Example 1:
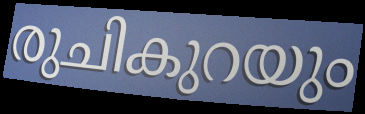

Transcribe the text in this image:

രുചികുറയും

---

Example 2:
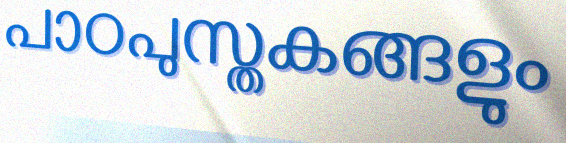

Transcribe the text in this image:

പാഠപുസ്തകങ്ങളും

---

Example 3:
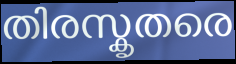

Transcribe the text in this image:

തിരസ്കൃതരെ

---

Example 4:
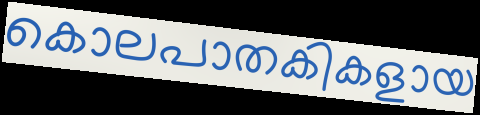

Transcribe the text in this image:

കൊലപാതകികളായ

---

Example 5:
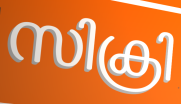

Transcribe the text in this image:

സിക്രി